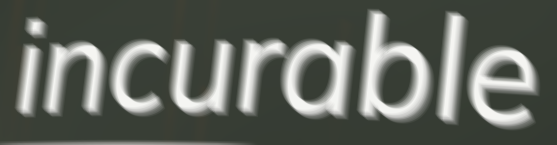
incurable